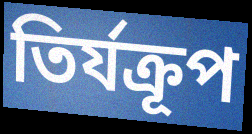
তির্যক্রূপ